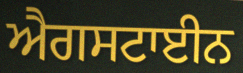
ਐਗਸਟਾਈਨ